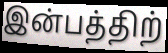
இன்பத்திற்